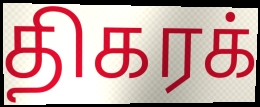
திகரக்